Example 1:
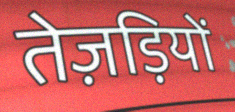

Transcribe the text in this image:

तेज़ड़ियों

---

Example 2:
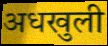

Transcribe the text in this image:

अधखुली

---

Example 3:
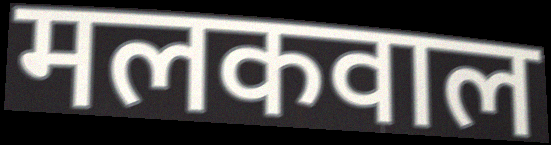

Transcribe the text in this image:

मलकवाल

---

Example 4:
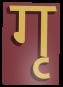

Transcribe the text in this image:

गृ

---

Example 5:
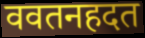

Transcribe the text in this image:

ववतनहदत